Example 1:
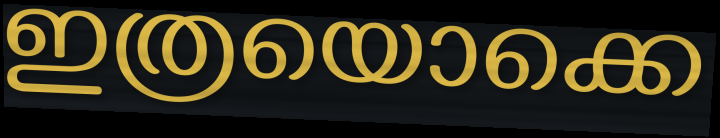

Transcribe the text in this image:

ഇത്രയൊക്കെ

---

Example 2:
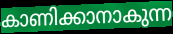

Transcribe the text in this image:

കാണിക്കാനാകുന്ന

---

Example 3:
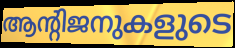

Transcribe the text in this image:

ആന്റിജനുകളുടെ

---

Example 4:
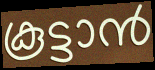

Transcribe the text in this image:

കൂട്ടാൻ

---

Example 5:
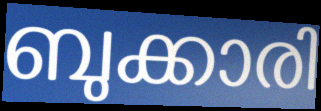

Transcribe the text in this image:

ബുക്കാരി